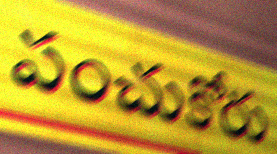
పంచుకోరు